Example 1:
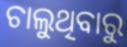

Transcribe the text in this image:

ଚାଲୁଥିବାରୁ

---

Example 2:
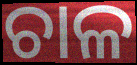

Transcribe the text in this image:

ଚାଳ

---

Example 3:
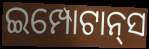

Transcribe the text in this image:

ଇମ୍ପୋଟାନ୍‌ସ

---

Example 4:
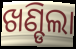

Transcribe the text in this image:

ଖଣ୍ଡିଲା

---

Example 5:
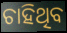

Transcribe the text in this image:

ଚାହିଥିବ